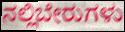
ನಲ್ಲಿಬೇರುಗಳು